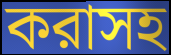
করাসহ